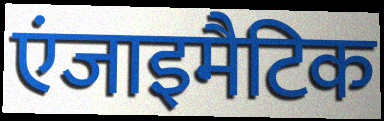
एंजाइमैटिक